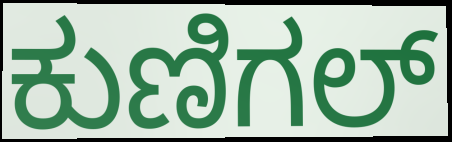
ಕುಣಿಗಲ್